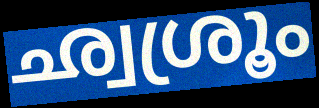
ഛ്വശ്രൂം